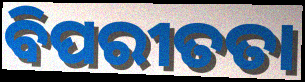
ବିପରୀତତା